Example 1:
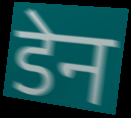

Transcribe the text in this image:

डेन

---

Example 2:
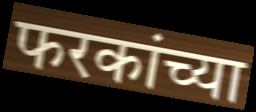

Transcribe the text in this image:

फरकांच्या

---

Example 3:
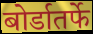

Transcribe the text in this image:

बोर्डातर्फे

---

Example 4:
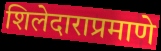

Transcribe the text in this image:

शिलेदाराप्रमाणे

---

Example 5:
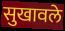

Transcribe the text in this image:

सुखावले